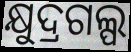
କ୍ଷୁଦ୍ରଗଲ୍ପ